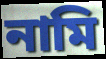
নামি